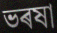
ভৰষা